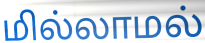
மில்லாமல்